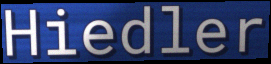
Hiedler